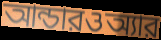
আন্ডারওঅ্যার